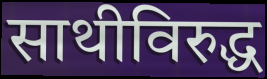
साथीविरुद्ध